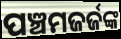
ପଞ୍ଚମଜର୍ଜଙ୍କ